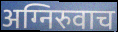
अग्निरुवाच